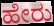
ಹೇರು